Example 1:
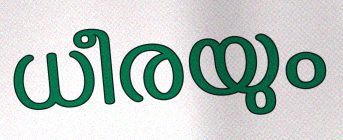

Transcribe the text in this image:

ധീരയും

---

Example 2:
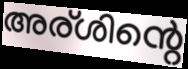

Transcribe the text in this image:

അര്ശിന്റെ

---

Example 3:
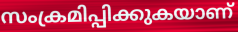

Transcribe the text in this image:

സംക്രമിപ്പിക്കുകയാണ്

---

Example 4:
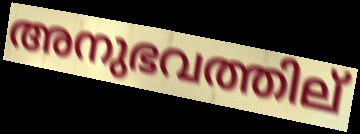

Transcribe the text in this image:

അനുഭവത്തില്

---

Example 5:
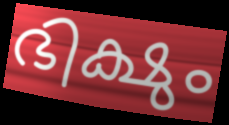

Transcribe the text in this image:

ഭിക്ഷും